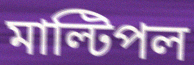
মাল্টিপল